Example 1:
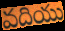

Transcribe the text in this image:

వదియు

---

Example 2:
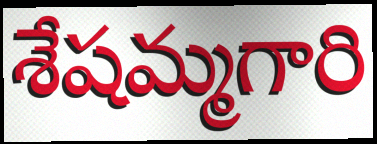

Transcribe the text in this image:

శేషమ్మగారి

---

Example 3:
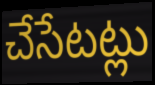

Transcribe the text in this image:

చేసేటట్లు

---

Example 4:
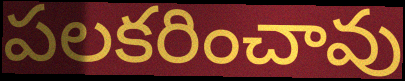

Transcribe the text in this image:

పలకరించావు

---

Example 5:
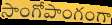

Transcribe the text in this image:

సాంగోపాంగంగా